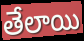
తేలాయి